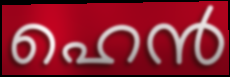
ഹെൻ